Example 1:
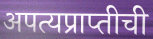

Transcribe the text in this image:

अपत्यप्राप्तीची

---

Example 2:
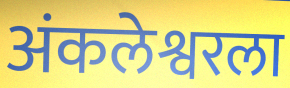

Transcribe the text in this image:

अंकलेश्वरला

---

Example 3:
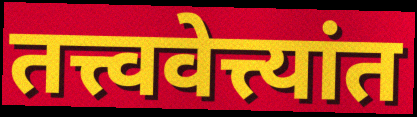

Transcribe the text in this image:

तत्त्ववेत्त्यांत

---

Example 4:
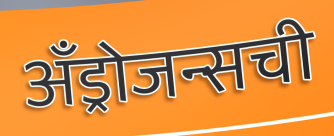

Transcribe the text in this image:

अँड्रोजन्सची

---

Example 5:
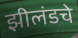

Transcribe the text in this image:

झीलंडचे